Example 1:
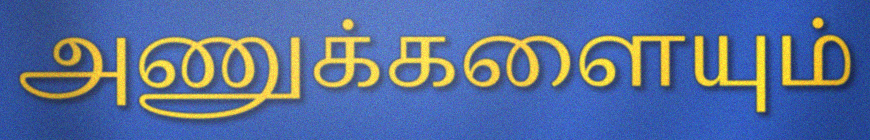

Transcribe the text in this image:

அணுக்களையும்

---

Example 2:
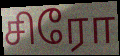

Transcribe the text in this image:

சிரோ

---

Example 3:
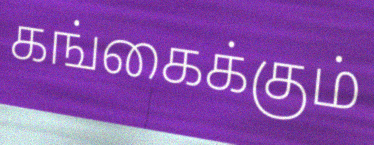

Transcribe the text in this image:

கங்கைக்கும்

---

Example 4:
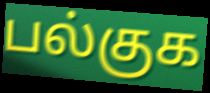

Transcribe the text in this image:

பல்குக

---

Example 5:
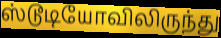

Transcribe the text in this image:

ஸ்டூடியோவிலிருந்து